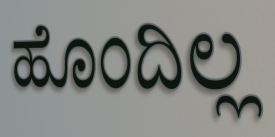
ಹೊಂದಿಲ್ಲ